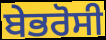
ਬੇਭਰੋਸੀ